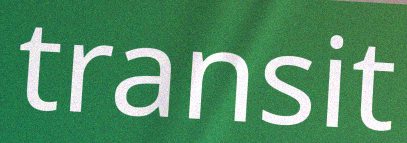
transit